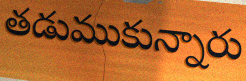
తడుముకున్నారు